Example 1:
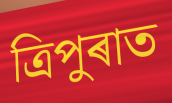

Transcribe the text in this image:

ত্ৰিপুৰাত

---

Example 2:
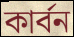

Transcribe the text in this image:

কাৰ্বন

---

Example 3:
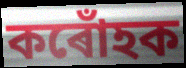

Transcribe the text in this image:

কৰোঁহক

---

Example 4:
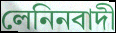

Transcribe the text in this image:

লেনিনবাদী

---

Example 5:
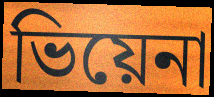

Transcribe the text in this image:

ভিয়েনা